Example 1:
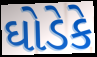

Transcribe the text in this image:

ઘોડેકે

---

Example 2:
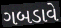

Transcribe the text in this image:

ગબડાવે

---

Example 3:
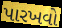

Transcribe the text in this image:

પારખવો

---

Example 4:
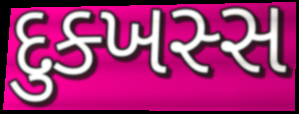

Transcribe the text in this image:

દુક્ખસ્સ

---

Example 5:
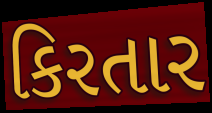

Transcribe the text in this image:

કિરતાર